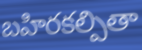
బహిరకల్పితా